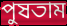
পুষতাম